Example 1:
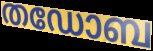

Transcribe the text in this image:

തഡോബ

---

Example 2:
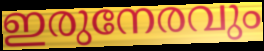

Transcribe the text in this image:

ഇരുനേരവും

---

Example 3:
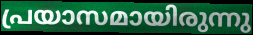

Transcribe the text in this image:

പ്രയാസമായിരുന്നു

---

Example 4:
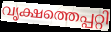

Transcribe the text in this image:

വൃക്ഷത്തെപ്പറ്റി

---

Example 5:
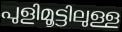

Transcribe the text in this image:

പുളിമൂട്ടിലുള്ള